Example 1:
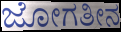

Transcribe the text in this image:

ಜೋಗತೀನ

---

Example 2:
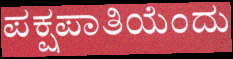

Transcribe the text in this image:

ಪಕ್ಷಪಾತಿಯೆಂದು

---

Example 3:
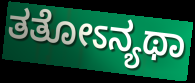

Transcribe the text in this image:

ತತೋಽನ್ಯಥಾ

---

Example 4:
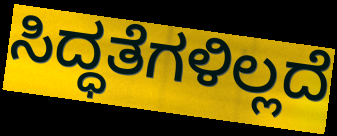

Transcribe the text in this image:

ಸಿದ್ಧತೆಗಳಿಲ್ಲದೆ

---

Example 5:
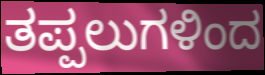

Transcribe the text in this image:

ತಪ್ಪಲುಗಳಿಂದ